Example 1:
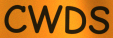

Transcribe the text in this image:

CWDS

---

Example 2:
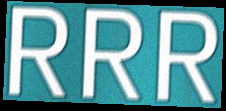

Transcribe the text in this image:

RRR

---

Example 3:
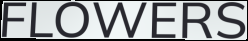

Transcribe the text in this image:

FLOWERS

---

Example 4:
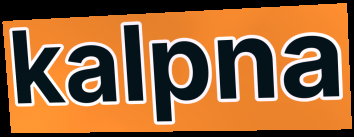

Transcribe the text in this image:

kalpna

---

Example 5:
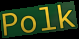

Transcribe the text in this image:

Polk